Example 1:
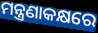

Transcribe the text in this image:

ମନ୍ତ୍ରଣାକକ୍ଷରେ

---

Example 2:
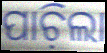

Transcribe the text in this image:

ପାଚ଼ିଲା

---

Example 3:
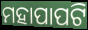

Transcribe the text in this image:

ମହାପାପଟି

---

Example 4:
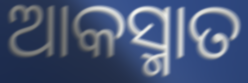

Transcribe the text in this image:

ଆକସ୍ମାତ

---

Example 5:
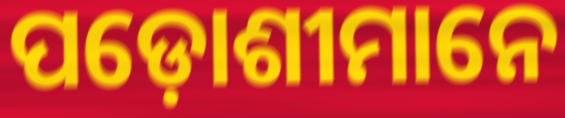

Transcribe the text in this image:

ପଡ଼ୋଶୀମାନେ